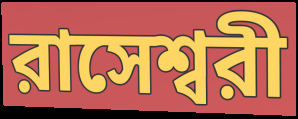
রাসেশ্বরী